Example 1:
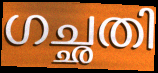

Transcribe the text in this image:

ഗച്ഛതി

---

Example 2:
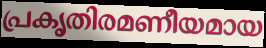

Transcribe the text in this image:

പ്രകൃതിരമണീയമായ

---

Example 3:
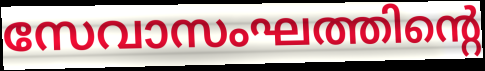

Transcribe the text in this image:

സേവാസംഘത്തിന്റെ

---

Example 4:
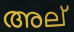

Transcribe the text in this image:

അല്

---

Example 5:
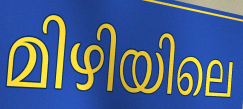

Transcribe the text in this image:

മിഴിയിലെ